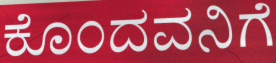
ಕೊಂದವನಿಗೆ